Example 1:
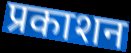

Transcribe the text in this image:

प्रकाशन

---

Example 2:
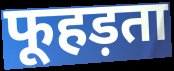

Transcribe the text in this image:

फूहड़ता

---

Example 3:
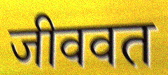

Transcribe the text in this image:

जीववत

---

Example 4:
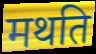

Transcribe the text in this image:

मथति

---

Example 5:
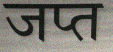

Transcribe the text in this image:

जप्त